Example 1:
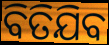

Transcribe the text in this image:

ବିତିଯିବ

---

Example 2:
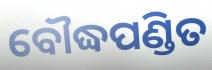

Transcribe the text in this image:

ବୌଦ୍ଧପଣ୍ଡିତ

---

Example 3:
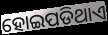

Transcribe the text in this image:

ହୋଇପଡିଥାଏ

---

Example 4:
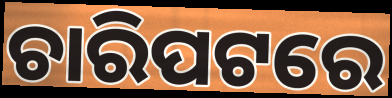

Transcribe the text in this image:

ଚାରିପଟରେ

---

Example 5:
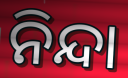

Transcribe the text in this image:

ନିନ୍ଦା